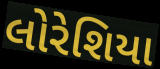
લોરેશિયા